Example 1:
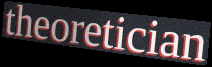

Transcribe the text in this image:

theoretician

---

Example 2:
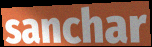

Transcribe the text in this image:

sanchar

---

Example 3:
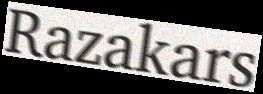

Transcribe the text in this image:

Razakars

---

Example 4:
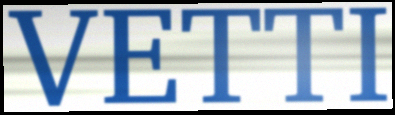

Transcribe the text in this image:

VETTI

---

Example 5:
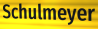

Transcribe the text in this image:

Schulmeyer